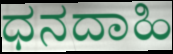
ಧನದಾಹಿ